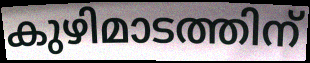
കുഴിമാടത്തിന്